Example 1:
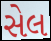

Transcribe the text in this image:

સેલ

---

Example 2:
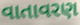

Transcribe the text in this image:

વાતાવરણ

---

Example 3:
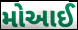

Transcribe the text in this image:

મોઆઈ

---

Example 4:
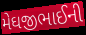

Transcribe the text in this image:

મેઘજીભાઈની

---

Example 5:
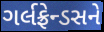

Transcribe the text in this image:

ગર્લફ્રેન્ડસને